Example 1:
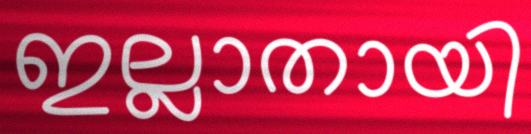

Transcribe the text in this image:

ഇല്ലാതായി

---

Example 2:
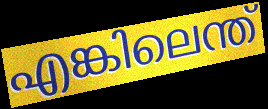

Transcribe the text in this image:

എങ്കിലെന്ത്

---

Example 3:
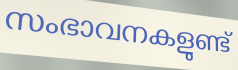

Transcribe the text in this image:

സംഭാവനകളുണ്ട്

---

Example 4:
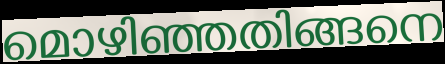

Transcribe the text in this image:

മൊഴിഞ്ഞതിങ്ങനെ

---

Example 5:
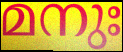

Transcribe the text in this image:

മനുഃ